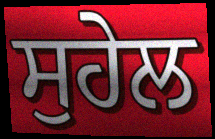
ਸੁਹੇਲ